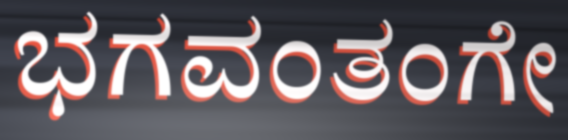
ಭಗವಂತಂಗೇ